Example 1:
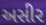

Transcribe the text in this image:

અસીર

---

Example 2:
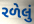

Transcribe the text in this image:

રળેલું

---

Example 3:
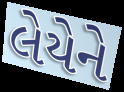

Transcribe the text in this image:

લેયેને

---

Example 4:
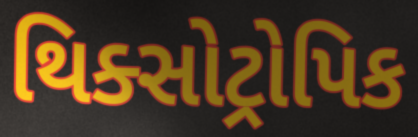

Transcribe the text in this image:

થિક્સોટ્રોપિક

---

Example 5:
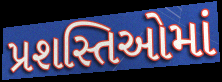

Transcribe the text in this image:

પ્રશસ્તિઓમાં